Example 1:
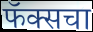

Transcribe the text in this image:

फॅक्सचा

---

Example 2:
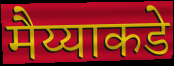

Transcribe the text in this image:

मैय्याकडे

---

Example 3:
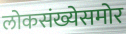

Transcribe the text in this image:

लोकसंख्येसमोर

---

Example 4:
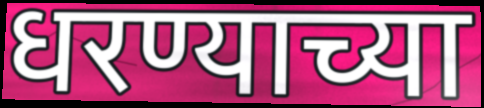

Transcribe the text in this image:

धरण्याच्या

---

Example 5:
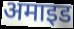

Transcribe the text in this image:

अमाइड